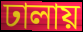
ঢালায়